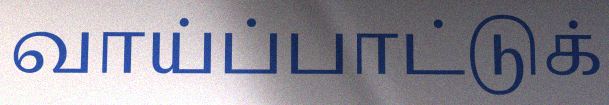
வாய்ப்பாட்டுக்